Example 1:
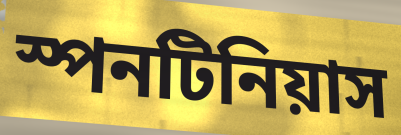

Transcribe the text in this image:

স্পনটিনিয়াস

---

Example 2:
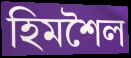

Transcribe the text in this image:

হিমশৈল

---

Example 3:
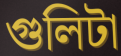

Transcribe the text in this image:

গুলিটা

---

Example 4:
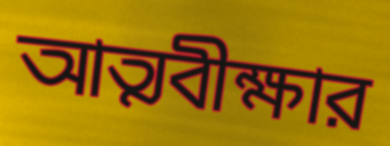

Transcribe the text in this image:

আত্মবীক্ষার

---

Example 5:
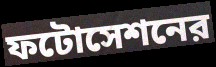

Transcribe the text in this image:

ফটোসেশনের